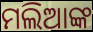
ମଲିଆଙ୍କ